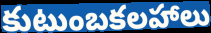
కుటుంబకలహాలు